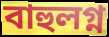
বাহুলগ্ন